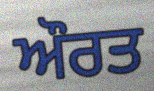
ਔਰਤ